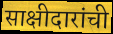
साक्षीदारांची